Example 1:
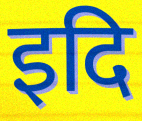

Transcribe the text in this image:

इदि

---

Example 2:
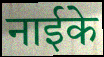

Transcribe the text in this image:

नाईके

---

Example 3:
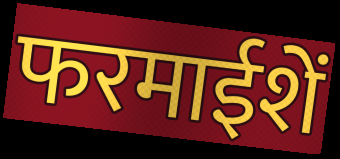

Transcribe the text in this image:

फरमाईशें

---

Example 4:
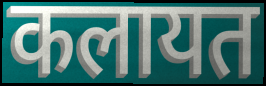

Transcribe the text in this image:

कलायत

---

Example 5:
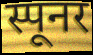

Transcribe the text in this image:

स्पूनर